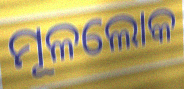
ମୂଳଲୋକ